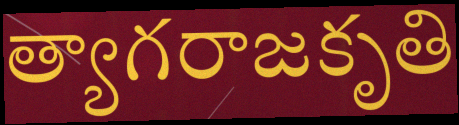
త్యాగరాజకృతి